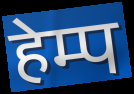
हेम्प